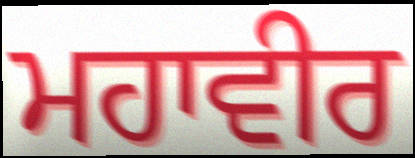
ਮਹਾਵੀਰ